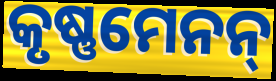
କୃଷ୍ଣମେନନ୍